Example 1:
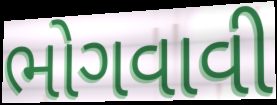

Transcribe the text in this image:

ભોગવાવી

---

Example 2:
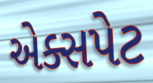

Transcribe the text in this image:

એક્સપેટ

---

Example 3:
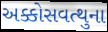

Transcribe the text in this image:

અક્કોસવત્થુના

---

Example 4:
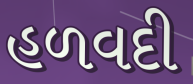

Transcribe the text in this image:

હળવદી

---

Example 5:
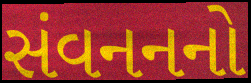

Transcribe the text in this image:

સંવનનનો